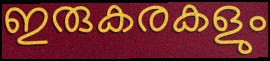
ഇരുകരകളും